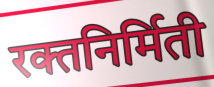
रक्तनिर्मिती